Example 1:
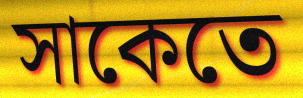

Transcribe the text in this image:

সাকেতে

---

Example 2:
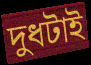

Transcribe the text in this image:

দুধটাই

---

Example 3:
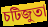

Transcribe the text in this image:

চটিজুতা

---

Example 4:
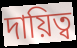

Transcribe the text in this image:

দায়িত্ব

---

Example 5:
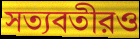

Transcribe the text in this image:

সত্যবতীরও